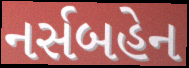
નર્સબહેન